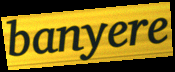
banyere